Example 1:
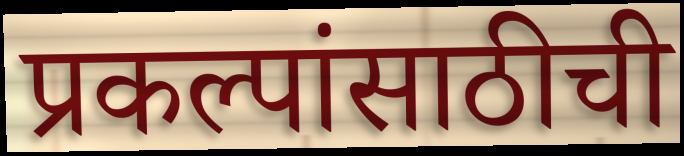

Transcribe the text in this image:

प्रकल्पांसाठीची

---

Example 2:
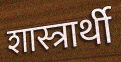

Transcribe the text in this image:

शास्त्रार्थी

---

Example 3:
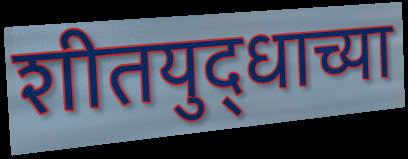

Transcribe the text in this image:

शीतयुद्धाच्या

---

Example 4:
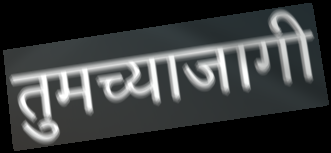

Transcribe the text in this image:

तुमच्याजागी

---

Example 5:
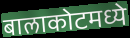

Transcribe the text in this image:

बालाकोटमध्ये